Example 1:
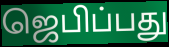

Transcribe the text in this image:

ஜெபிப்பது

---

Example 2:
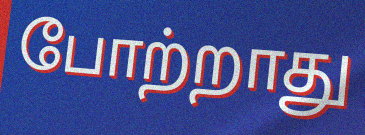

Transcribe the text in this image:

போற்றாது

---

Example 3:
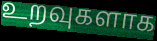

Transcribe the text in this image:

உறவுகளாக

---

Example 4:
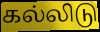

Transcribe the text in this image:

கல்லிடு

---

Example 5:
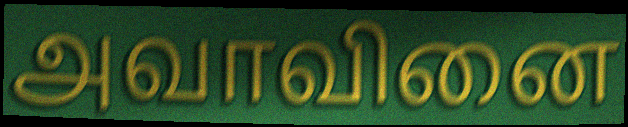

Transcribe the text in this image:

அவாவினை